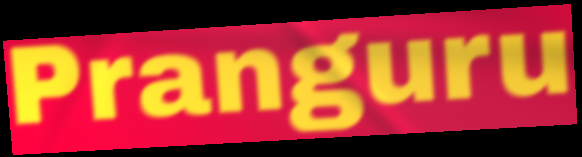
Pranguru